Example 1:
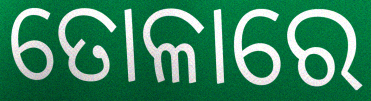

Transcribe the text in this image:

ତୋଳାରେ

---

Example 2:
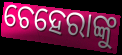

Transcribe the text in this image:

ଚେହେରାଙ୍କୁ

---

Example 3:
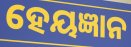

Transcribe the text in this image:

ହେୟଜ୍ଞାନ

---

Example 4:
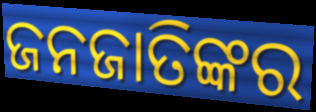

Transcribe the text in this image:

ଜନଜାତିଙ୍କର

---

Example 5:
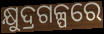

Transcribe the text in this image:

କ୍ଷୁଦ୍ରଗଳ୍ପରେ